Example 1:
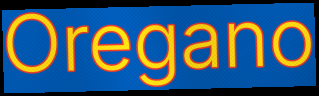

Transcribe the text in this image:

Oregano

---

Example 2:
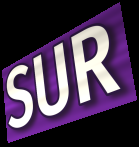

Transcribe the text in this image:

SUR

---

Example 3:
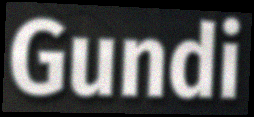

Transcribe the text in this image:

Gundi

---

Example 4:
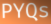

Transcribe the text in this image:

PYQs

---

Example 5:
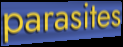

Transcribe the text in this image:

parasites